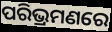
ପରିଭ୍ରମଣରେ